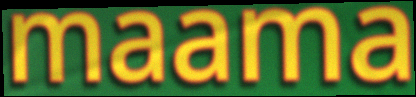
maama